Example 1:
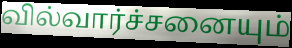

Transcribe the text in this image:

வில்வார்ச்சனையும்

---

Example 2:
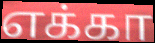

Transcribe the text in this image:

எக்கா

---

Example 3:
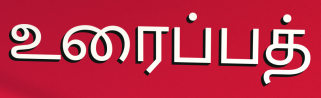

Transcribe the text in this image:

உரைப்பத்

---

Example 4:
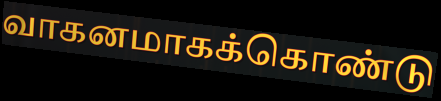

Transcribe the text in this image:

வாகனமாகக்கொண்டு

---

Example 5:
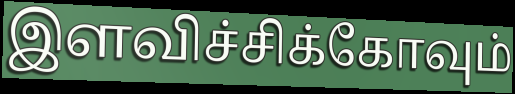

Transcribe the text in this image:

இளவிச்சிக்கோவும்